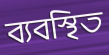
ব্যবস্থিত